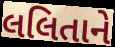
લલિતાને